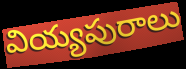
వియ్యపురాలు